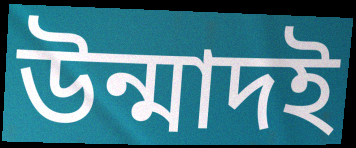
উন্মাদই